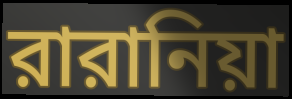
রারানিয়া